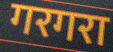
गरगरा